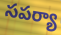
సపర్యా